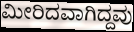
ಮೀರಿದವಾಗಿದ್ದವು